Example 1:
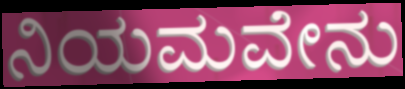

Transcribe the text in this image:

ನಿಯಮವೇನು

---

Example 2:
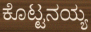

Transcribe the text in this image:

ಕೊಟ್ಟನಯ್ಯ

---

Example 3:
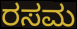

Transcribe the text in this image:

ರಸಮ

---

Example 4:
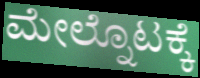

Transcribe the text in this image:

ಮೇಲ್ನೊಟಕ್ಕೆ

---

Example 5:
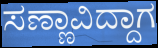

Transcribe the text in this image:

ಸಣ್ಣಾವಿದ್ದಾಗ